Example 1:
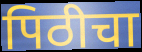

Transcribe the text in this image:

पिठीचा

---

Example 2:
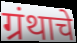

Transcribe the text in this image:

ग्रंथाचे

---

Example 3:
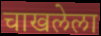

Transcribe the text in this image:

चाखलेला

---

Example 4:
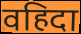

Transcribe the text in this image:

वहिदा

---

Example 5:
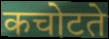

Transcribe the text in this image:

कचोटते